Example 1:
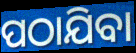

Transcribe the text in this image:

ପଠାଯିବା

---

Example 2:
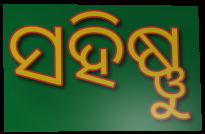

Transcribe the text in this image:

ସହିଷ୍ଣୁ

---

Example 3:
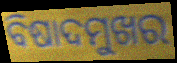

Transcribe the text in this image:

ବିଷାଦମୁଖର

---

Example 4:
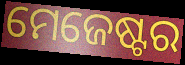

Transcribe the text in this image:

ମେଜେଷ୍ଟର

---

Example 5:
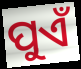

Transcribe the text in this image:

ପୁଏଁ